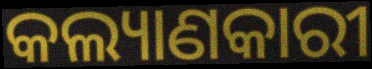
କଲ୍ୟାଣକାରୀ